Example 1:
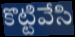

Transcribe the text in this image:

కొట్టివేసి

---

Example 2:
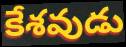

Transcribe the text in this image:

కేశవుడు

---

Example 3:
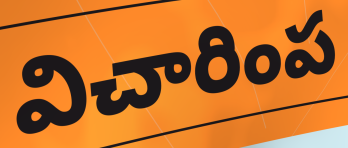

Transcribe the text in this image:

విచారింప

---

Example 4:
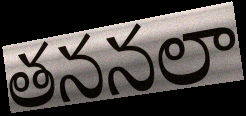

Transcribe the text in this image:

తననలా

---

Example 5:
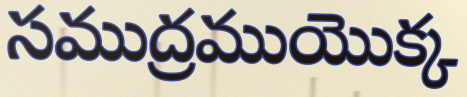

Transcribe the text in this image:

సముద్రముయొక్క